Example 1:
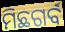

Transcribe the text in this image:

ମିଛଗର୍ବ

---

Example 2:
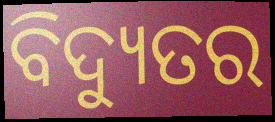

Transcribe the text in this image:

ବିଦ୍ୟୁତର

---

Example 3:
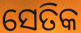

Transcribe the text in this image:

ସେତିକ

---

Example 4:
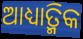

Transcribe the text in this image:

ଆଧ୍ୟାତ୍ମିକ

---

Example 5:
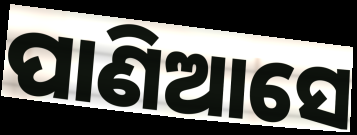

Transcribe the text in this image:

ପାଣିଆସେ